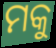
ମକୁ